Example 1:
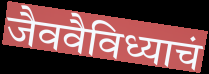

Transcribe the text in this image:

जैववैविध्याचं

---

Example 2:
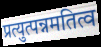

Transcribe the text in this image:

प्रत्युत्पन्नमतित्व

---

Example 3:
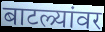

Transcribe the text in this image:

बाटल्यांवर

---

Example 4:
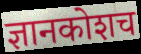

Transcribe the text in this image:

ज्ञानकोशच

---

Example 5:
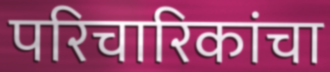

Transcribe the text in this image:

परिचारिकांचा